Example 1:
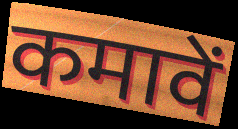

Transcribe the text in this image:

कमावें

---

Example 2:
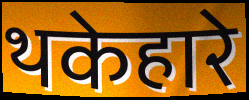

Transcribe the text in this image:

थकेहारे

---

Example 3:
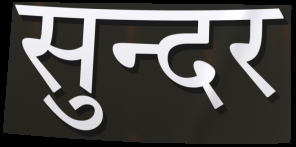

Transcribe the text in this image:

सुन्‍दर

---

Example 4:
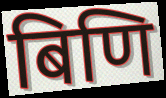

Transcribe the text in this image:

बिणि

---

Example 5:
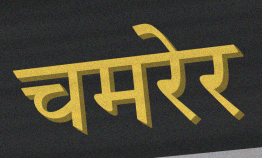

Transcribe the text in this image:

चमरेर